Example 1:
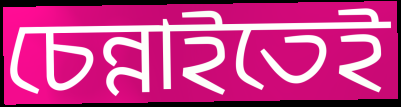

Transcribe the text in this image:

চেন্নাইতেই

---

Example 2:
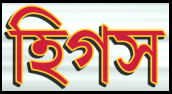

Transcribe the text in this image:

হিগস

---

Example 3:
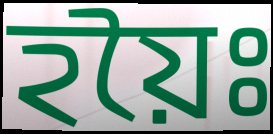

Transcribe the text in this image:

হয়ৈঃ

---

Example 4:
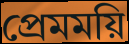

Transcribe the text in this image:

প্রেমময়ি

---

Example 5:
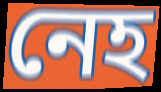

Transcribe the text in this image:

নেহ